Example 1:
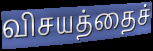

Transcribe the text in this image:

விசயத்தைச்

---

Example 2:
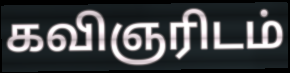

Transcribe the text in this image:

கவிஞரிடம்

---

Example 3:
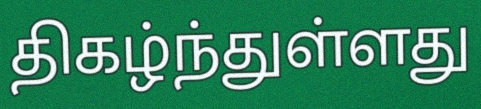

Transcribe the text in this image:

திகழ்ந்துள்ளது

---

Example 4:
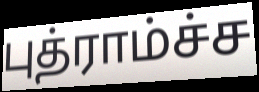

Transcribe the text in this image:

புத்ராம்ச்ச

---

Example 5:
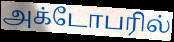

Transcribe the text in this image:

அக்டோபரில்